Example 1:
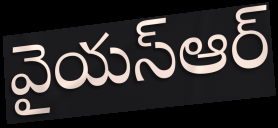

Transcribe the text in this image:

వైయస్ఆర్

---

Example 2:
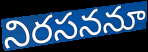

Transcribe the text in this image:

నిరసననూ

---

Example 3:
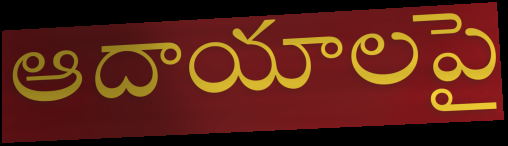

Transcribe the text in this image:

ఆదాయాలపై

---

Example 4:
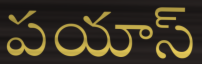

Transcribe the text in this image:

పయాస్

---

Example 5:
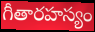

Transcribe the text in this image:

గీతారహస్యం